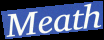
Meath